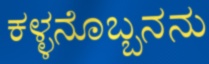
ಕಳ್ಳನೊಬ್ಬನನು